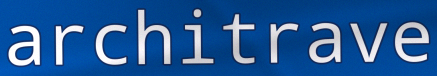
architrave